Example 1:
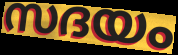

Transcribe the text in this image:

സദയം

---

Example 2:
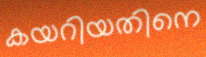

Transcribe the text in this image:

കയറിയതിനെ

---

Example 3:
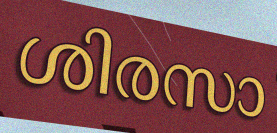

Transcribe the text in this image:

ശിരസാ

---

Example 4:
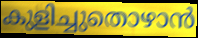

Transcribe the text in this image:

കുളിച്ചുതൊഴാൻ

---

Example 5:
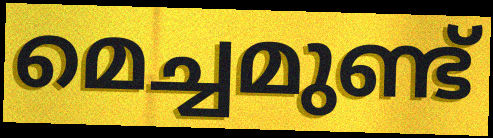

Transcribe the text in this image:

മെച്ചമുണ്ട്